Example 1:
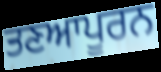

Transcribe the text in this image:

ਤਣਆਪੂਰਨ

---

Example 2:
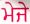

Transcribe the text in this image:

ਮੇਜੇ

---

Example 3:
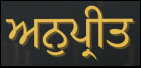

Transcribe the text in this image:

ਅਨੁਪ੍ਰੀਤ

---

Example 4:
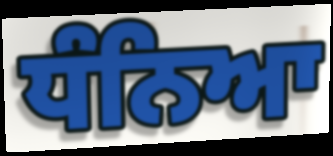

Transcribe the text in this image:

ਧੰਨਿਆ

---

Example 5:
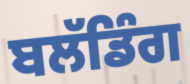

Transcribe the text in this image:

ਬਲੱਡਿੰਗ